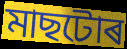
মাছটোৰ